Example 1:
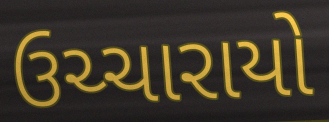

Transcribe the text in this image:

ઉચ્ચારાયો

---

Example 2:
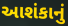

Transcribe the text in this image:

આશંકાનું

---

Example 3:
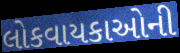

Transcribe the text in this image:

લોકવાયકાઓની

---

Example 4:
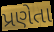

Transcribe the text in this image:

પ્રણેતા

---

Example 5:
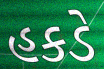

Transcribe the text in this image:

હકડે